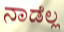
ನಾಡೆಲ್ಲ